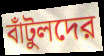
বাঁটুলদের